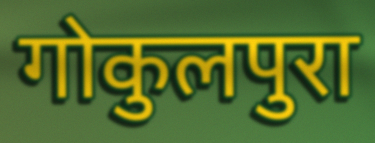
गोकुलपुरा